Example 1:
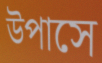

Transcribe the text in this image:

উপাসে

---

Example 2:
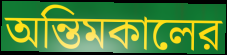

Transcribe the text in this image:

অন্তিমকালের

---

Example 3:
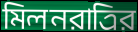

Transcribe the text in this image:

মিলনরাত্রির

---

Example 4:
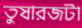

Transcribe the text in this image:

তুষারজটা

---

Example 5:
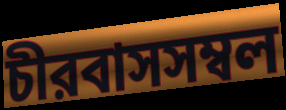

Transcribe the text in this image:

চীরবাসসম্বল